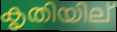
കൃതിയില്